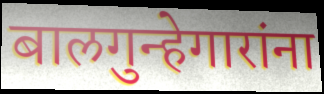
बालगुन्हेगारांना